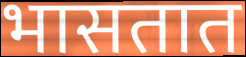
भासतात